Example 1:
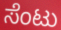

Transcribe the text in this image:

ಸೆಂಟು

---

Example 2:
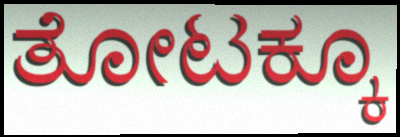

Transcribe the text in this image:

ತೋಟಕ್ಕೂ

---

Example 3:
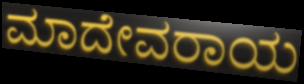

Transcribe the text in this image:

ಮಾದೇವರಾಯ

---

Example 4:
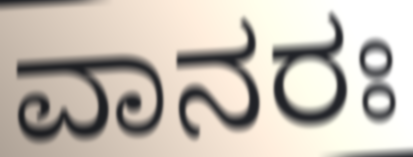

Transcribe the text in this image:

ವಾನರಃ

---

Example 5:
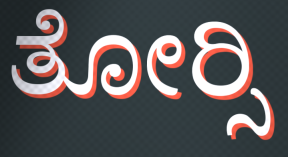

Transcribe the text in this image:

ತೋರ್‍ಸಿ